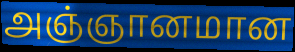
அஞ்ஞானமான